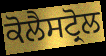
ਕੋਲੈਸਟ੍ਰੋਲ